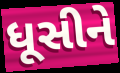
ધૂસીને